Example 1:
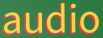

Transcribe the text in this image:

audio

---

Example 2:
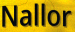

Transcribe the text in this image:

Nallor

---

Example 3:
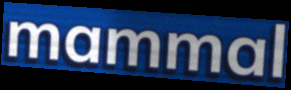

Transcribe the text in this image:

mammal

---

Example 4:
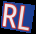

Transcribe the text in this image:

RL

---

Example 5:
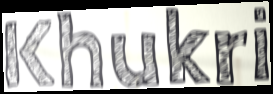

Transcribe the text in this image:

Khukri